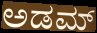
ಅಡಮ್